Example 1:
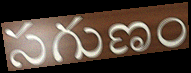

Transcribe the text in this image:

సగుణం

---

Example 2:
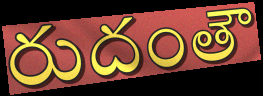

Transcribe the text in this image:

రుదంతౌ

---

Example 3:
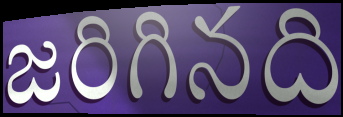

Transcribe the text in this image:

జరిగినది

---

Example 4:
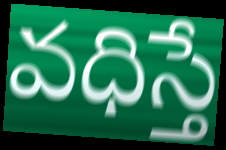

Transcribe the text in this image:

వధిస్తే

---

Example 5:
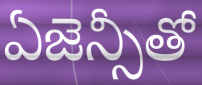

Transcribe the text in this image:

ఏజెన్సీతో